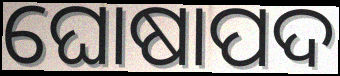
ଘୋଷାପଦ